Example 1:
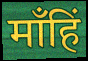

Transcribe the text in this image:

माँहिं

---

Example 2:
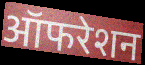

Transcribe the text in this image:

ऑफरेशन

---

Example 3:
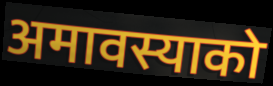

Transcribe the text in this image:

अमावस्याको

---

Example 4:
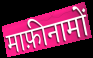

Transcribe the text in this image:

माफ़ीनामों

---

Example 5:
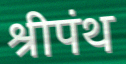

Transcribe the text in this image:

श्रीपंथ